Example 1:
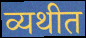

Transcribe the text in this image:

व्यथीत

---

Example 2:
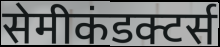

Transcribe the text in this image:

सेमीकंडक्टर्स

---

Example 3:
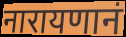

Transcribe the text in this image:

नारायणानं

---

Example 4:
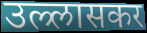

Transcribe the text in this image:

उल्लासकर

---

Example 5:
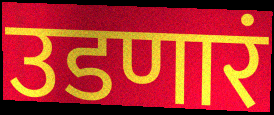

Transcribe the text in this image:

उडणारं